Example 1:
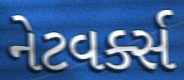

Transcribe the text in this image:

નેટવર્ક્સ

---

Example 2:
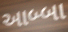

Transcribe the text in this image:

આબ્બા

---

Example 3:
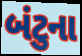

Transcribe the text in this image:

બંટુના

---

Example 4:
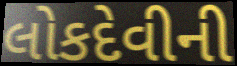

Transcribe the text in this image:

લોકદેવીની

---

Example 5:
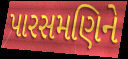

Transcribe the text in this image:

પારસમણિને